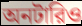
অনটারিও